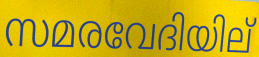
സമരവേദിയില്